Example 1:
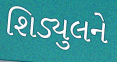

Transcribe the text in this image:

શિડ્યુલને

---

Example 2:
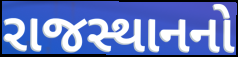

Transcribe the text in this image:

રાજસ્થાનનો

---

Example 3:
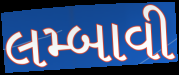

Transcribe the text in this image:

લમ્બાવી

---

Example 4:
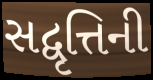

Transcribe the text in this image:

સદ્વૃત્તિની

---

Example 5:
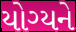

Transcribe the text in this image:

યોગ્યને